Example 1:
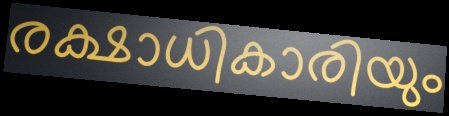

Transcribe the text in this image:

രക്ഷാധികാരിയും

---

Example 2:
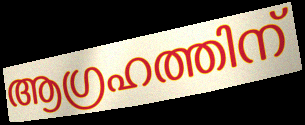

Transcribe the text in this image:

ആഗ്രഹത്തിന്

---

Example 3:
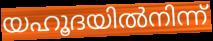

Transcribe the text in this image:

യഹൂദയിൽനിന്ന്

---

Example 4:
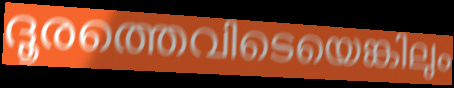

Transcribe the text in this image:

ദൂരത്തെവിടെയെങ്കിലും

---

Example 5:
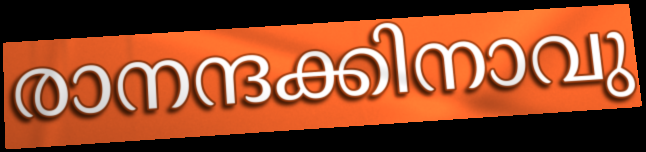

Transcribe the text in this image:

രാനന്ദക്കിനാവു